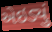
એઇડ્યું